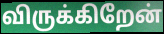
விருக்கிறேன்